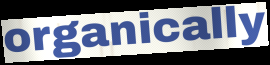
organically